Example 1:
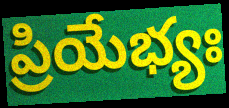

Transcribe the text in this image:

ప్రియేభ్యః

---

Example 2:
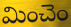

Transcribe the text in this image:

మించెం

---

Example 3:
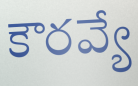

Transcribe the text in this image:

కౌరవ్యే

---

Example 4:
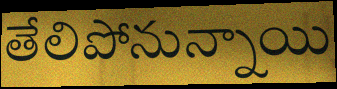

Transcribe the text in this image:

తేలిపోనున్నాయి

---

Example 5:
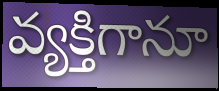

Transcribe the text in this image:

వ్యక్తిగానూ